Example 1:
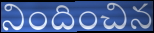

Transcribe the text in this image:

నిందించిన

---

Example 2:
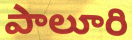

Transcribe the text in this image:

పాలూరి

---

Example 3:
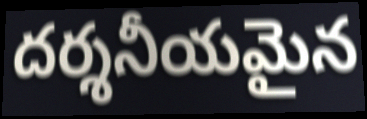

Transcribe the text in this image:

దర్శనీయమైన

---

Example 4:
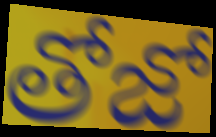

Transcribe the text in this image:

తోజో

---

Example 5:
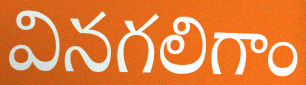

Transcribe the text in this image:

వినగలిగాం